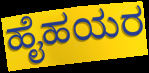
ಹೈಹಯರ